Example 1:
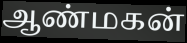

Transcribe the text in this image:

ஆண்மகன்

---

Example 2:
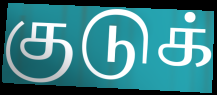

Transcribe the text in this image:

குடுக்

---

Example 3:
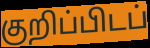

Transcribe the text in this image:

குறிப்பிடப்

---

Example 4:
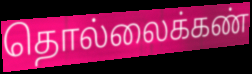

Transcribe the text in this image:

தொல்லைக்கண்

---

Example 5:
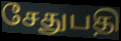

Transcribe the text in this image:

சேதுபதி